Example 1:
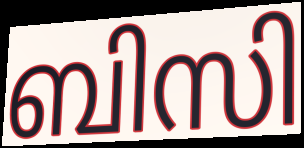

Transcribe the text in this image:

ബിസി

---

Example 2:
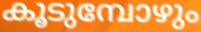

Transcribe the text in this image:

കൂടുമ്പോഴും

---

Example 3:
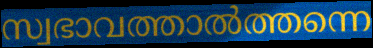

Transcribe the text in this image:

സ്വഭാവത്താൽത്തന്നെ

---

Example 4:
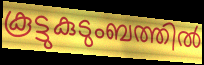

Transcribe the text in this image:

കൂട്ടുകുടുംബത്തിൽ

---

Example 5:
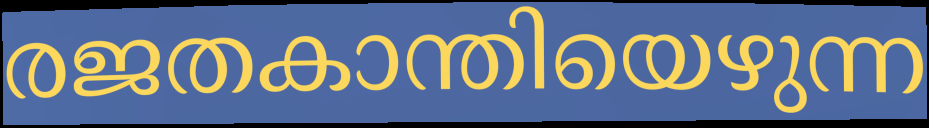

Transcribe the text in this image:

രജതകാന്തിയെഴുന്ന